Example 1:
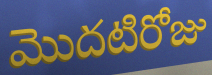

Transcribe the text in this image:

మొదటిరోజు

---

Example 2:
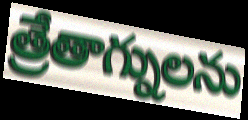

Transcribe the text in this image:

త్రేతాగ్నులను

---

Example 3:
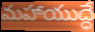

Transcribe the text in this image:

మహాయుద్ధే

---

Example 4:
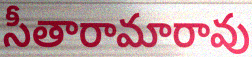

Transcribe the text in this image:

సీతారామారావు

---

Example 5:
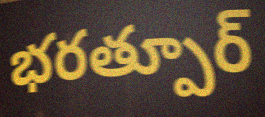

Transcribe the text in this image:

భరత్పూర్